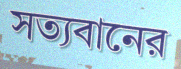
সত্যবানের